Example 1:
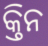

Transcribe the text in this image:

କ୍ତିନ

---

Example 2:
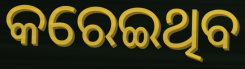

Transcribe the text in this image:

କରେଇଥିବ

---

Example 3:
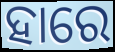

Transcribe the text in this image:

ହାରେ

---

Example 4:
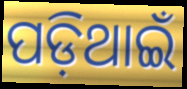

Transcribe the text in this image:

ପଡ଼ିଥାଇଁ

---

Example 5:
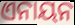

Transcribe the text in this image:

ଏନାୟନ